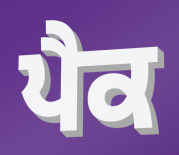
ਪੈਕ